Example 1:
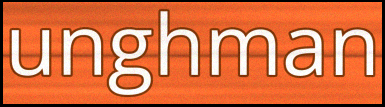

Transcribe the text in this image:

unghman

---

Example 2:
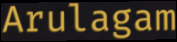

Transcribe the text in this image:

Arulagam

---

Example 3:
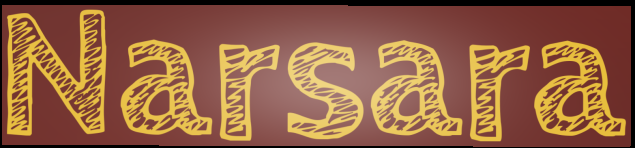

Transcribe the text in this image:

Narsara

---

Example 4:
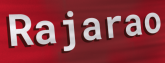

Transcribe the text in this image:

Rajarao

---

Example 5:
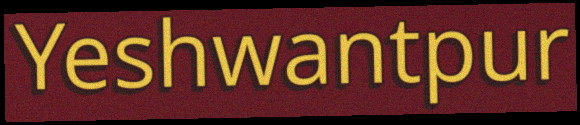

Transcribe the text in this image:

Yeshwantpur